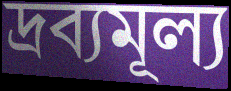
দ্রব্যমূল্য